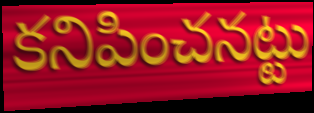
కనిపించనట్టు